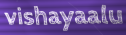
vishayaalu